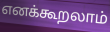
எனக்கூறலாம்